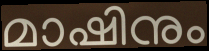
മാഷിനും